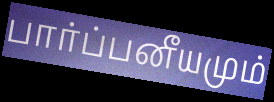
பார்ப்பனீயமும்